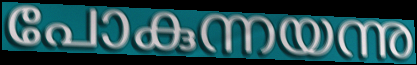
പോകുന്നയന്നു